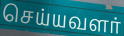
செய்யவளர்